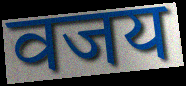
वजय